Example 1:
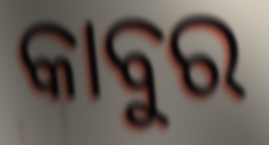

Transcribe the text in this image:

କାବୁର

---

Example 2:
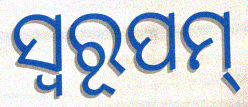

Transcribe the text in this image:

ସ୍ୱରୂପମ୍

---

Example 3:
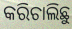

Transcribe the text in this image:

କରିଚାଲିଛୁ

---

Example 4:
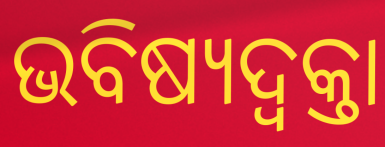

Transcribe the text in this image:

ଭବିଷ୍ୟଦ୍ବକ୍ତା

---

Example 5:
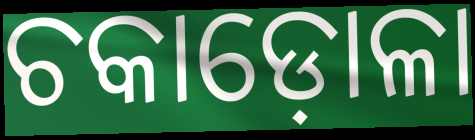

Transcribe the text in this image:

ଚକାଡ଼ୋଳା